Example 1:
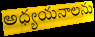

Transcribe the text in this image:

అధ్యయనాలను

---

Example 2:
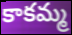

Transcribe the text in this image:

కాకమ్మ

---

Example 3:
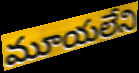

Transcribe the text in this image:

మూయలేని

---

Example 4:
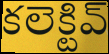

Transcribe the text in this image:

కలెక్టివ్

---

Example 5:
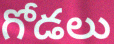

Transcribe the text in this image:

గోడలు